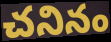
చనినం